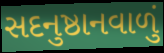
સદનુષ્ઠાનવાળું